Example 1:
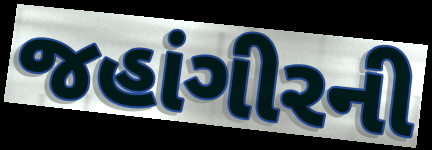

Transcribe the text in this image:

જહાંગીરની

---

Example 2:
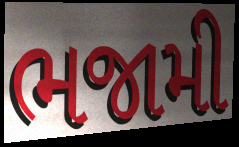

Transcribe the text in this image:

ભજામી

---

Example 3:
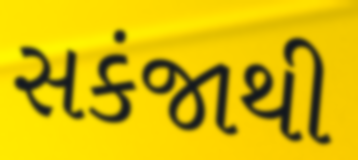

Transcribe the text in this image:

સકંજાથી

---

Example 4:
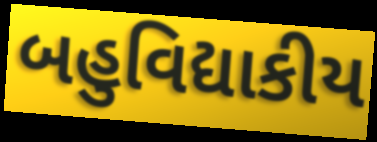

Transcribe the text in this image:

બહુવિદ્યાકીય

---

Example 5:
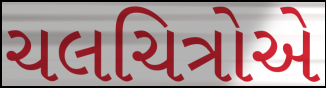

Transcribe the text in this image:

ચલચિત્રોએ